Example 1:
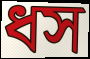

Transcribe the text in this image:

ধস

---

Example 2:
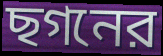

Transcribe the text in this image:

ছগনের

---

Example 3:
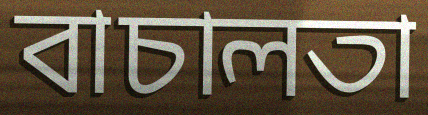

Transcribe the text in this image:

বাচালতা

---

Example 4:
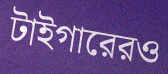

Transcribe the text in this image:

টাইগারেরও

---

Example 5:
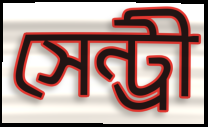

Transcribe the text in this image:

সেন্ট্রী